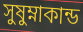
সুষুম্নাকান্ড